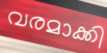
വരമാക്കി